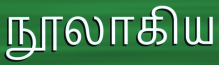
நூலாகிய